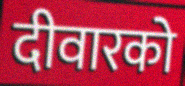
दीवारको